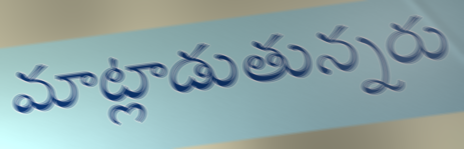
మాట్లాడుతున్నరు